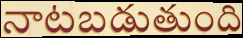
నాటబడుతుంది